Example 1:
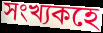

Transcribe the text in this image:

সংখ্যকহে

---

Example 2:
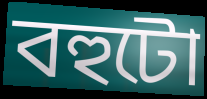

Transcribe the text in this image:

বহুটো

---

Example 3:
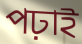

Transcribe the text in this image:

পঢ়াই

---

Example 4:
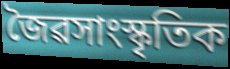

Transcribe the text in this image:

জৈৱসাংস্কৃতিক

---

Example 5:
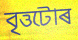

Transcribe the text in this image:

বৃত্তটোৰ